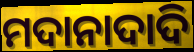
ମଦାନାଦାଦି